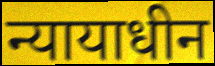
न्यायाधीन